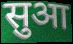
सुआ